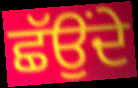
ਛੱਉਂਦੇ